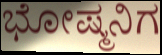
ಭೋಷ್ಮನಿಗ